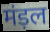
मंड़ल